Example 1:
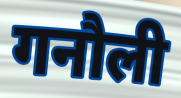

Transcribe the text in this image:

गनौली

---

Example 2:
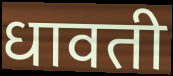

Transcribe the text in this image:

धावती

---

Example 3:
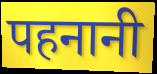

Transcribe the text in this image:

पहनानी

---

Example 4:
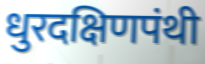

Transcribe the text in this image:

धुरदक्षिणपंथी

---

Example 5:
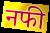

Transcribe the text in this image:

नफी